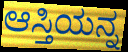
ಆಸ್ತಿಯನ್ನ